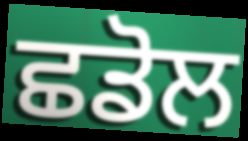
ਛਡੋਲ